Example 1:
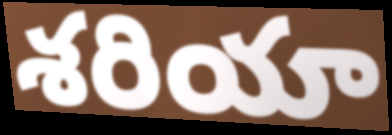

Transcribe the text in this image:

శరియా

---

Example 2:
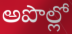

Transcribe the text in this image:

అపొల్లో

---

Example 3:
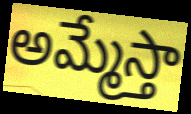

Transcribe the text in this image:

అమ్మేస్తా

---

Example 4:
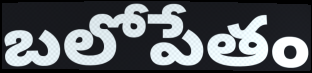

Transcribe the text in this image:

బలోపేతం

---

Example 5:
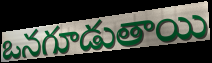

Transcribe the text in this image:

ఒనగూడుతాయి